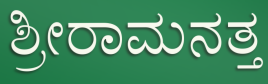
ಶ್ರೀರಾಮನತ್ತ